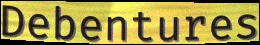
Debentures